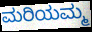
ಮರಿಯಮ್ಮ